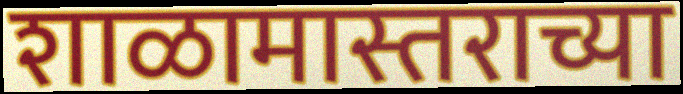
शाळामास्तराच्या